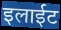
इलाईट